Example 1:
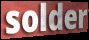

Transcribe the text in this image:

solder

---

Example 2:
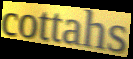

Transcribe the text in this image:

cottahs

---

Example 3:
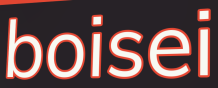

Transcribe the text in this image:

boisei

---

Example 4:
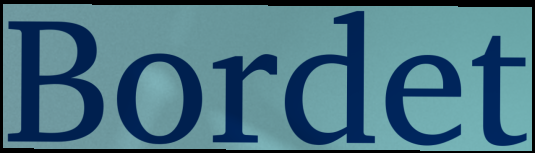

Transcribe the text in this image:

Bordet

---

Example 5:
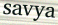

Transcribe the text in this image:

savya